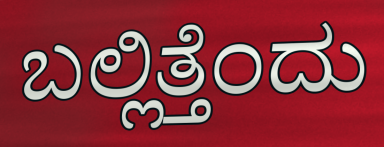
ಬಲ್ಲಿತ್ತೆಂದು